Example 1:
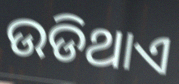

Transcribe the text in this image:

ଉଡିଥାଏ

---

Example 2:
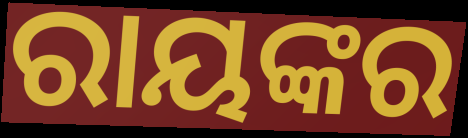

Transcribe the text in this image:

ରାୟଙ୍କର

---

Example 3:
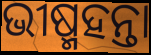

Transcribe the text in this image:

ଭୀଷ୍ମହନ୍ତା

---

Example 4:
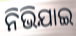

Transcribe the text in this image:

ନିଭିଯାଇ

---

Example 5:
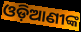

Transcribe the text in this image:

ଓଡ଼ିଆଣୀଙ୍କ